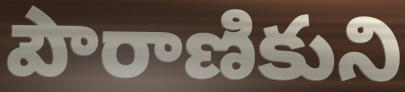
పౌరాణికుని